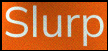
Slurp